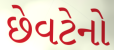
છેવટેનો